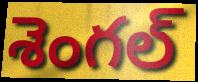
శెంగల్